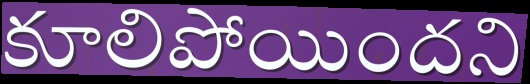
కూలిపోయిందని